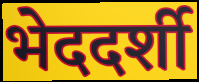
भेददर्शी